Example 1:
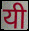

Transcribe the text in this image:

यी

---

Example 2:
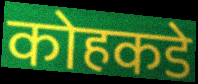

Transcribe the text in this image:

कोहकडे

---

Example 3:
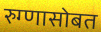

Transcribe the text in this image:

रुग्णासोबत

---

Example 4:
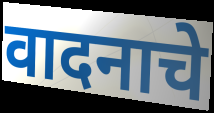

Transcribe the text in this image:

वादनाचे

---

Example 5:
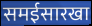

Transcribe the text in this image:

समईसारखा